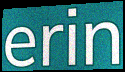
erin